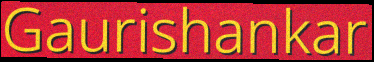
Gaurishankar